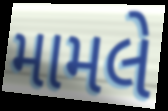
મામલે